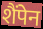
शैंपेन